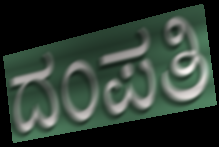
ದಂಪತಿ